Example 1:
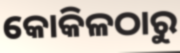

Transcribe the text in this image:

କୋକିଳଠାରୁ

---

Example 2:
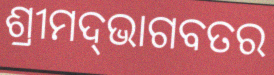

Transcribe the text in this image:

ଶ୍ରୀମଦ୍‌ଭାଗବତର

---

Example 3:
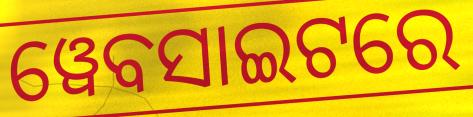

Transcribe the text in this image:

ୱେବସାଇଟରେ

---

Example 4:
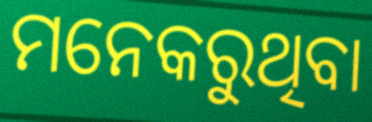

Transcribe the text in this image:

ମନେକରୁଥିବା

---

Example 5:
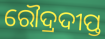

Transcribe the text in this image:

ରୌଦ୍ରଦୀପ୍ତ